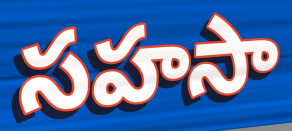
సహసా